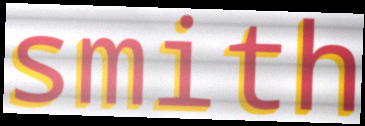
smith